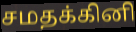
சமதக்கினி